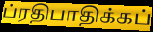
ப்ரதிபாதிக்கப்